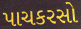
પાચકરસો